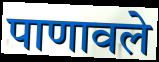
पाणावले